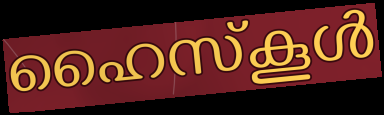
ഹൈസ്‌കൂൾ